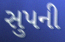
સુપની